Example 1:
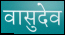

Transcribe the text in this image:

वासुदेव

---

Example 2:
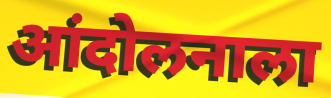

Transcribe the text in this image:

आंदोलनाला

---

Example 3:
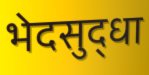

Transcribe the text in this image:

भेदसुद्धा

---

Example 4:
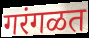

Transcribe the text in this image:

गरंगळत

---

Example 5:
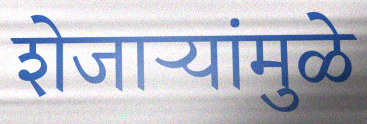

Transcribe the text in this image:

शेजाऱ्यांमुळे